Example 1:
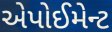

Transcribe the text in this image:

એપોઈમેન્ટ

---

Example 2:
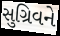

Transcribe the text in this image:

સુગ્રિવને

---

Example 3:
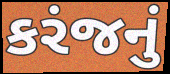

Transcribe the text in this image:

કરંજનું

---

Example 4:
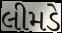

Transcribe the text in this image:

લીમડે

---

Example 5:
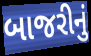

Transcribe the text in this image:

બાજરીનું